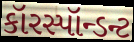
કૉરસ્પૉન્ડન્ટ